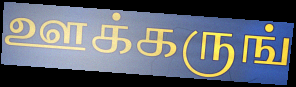
ஊக்கருங்